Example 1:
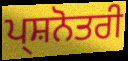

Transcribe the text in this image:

ਪ੍ਸ਼ਨੋਤਰੀ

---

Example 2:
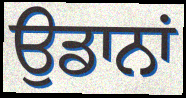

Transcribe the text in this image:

ਉਡਾਨਾਂ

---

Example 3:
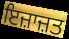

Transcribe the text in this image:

ਇਜ਼ਾਜ਼ਤ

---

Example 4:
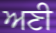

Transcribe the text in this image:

ਅਣੀ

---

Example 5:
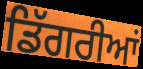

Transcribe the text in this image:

ਡਿੱਗਰੀਆਂ